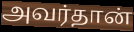
அவர்தான்